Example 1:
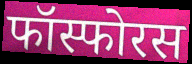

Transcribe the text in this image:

फॉस्फोरस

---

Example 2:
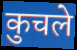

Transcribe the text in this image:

कुचले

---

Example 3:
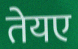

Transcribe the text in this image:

तेयए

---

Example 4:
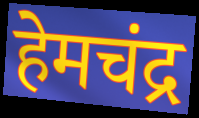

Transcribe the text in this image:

हेमचंद्र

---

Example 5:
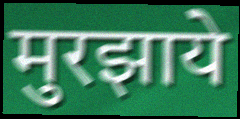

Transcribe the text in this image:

मुरझाये